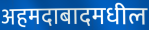
अहमदाबादमधील